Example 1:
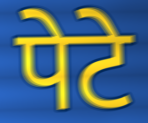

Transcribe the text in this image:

पेटे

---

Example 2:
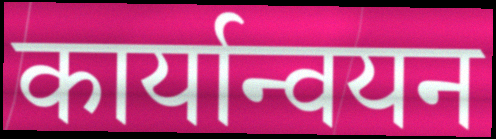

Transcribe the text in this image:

कार्यान्वयन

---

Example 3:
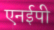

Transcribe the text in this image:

एनईपी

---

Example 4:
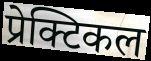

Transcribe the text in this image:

प्रेक्टिकल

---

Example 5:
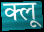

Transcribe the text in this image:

क्लू